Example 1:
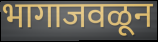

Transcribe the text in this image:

भागाजवळून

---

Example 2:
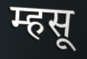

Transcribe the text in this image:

म्हसू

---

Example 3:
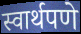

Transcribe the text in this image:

स्वार्थपणे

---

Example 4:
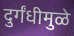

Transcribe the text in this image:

दुर्गंधीमुळे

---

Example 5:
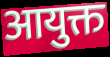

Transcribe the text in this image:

आयुक्त